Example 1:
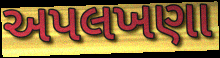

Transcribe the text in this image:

અપલખણા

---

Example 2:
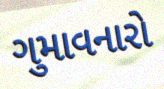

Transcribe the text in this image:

ગુમાવનારો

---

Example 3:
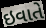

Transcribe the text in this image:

ઇવાતે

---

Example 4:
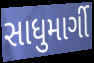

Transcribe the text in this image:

સાધુમાર્ગી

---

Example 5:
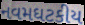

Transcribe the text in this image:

નવમઘટકીય